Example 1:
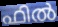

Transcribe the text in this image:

ഫിൽ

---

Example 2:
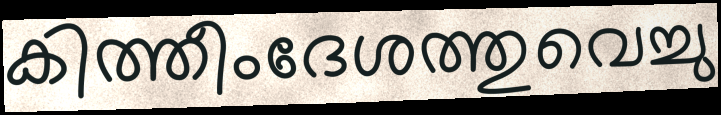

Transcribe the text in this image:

കിത്തീംദേശത്തുവെച്ചു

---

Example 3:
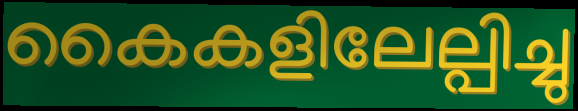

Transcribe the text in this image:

കൈകളിലേല്പിച്ചു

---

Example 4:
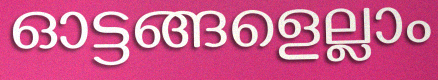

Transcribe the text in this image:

ഓട്ടങ്ങളെല്ലാം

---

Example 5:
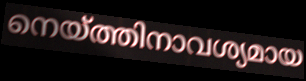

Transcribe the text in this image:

നെയ്ത്തിനാവശ്യമായ